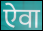
ऐवा